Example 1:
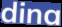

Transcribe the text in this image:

dina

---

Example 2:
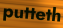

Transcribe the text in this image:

putteth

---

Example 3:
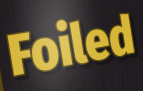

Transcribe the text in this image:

Foiled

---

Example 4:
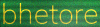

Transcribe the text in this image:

bhetore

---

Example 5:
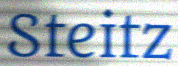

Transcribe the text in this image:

Steitz